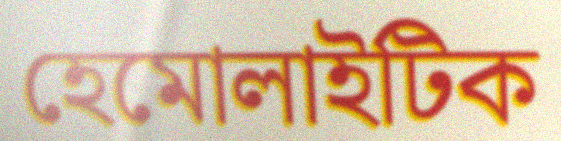
হেমোলাইটিক